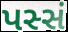
પસ્સં